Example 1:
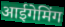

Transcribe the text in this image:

आईगेमिंग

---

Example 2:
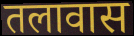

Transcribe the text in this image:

तलावास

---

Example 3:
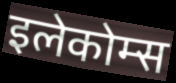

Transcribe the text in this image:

इलेकोम्स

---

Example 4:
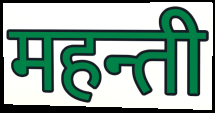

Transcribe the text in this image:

महन्ती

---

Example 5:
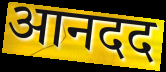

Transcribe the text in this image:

आनदद